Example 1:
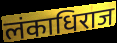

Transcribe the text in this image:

लंकाधिराज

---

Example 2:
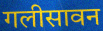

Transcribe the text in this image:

गलीसावन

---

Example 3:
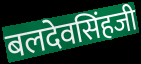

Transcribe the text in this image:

बलदेवसिंहजी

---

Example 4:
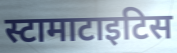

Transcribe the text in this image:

स्टामाटाइटिस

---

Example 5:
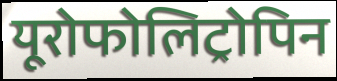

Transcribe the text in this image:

यूरोफोलिट्रोपिन